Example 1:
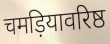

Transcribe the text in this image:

चमड़ियावरिष्ठ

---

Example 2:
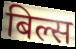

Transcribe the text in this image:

बिल्स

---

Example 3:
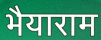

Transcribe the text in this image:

भैयाराम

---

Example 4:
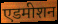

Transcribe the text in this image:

एडमीशन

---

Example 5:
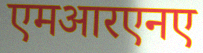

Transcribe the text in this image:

एमआरएनए